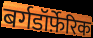
बर्गडॉर्फ़ेरिक